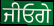
ਜੀਓਗੇ